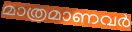
മാത്രമാണവർ